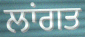
ਲਾਂਗਤ